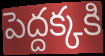
పెద్దక్కకి